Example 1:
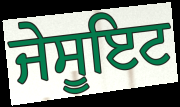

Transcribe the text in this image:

ਜੇਸੂਇਟ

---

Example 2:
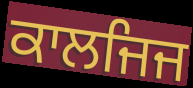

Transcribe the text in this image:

ਕਾਲਜਿਜ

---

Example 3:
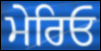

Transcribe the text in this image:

ਮੇਰਿਓ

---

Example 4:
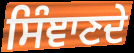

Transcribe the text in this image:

ਸਿੰਞਾਣਦੇ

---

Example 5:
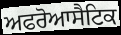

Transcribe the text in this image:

ਅਫਰੋਆਸੈਟਿਕ